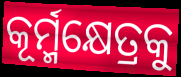
କୂର୍ମ୍ମକ୍ଷେତ୍ରକୁ